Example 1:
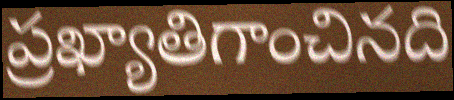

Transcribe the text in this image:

ప్రఖ్యాతిగాంచినది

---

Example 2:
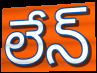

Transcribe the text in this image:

లేన్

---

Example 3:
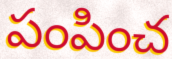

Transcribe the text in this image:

పంపించ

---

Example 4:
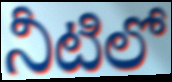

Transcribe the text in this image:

నీటిలో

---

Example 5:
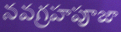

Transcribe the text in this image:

నవగ్రహపూజా